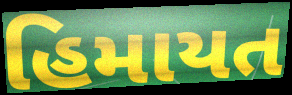
હિમાયત